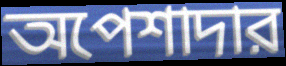
অপেশাদার